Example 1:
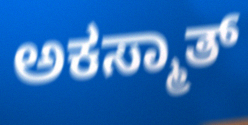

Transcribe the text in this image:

ಅಕಸ್ಮಾತ್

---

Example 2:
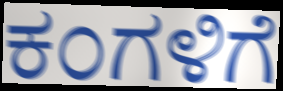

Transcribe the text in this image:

ಕಂಗಳಿಗೆ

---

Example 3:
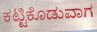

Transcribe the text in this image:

ಕಟ್ಟಿಕೊಡುವಾಗ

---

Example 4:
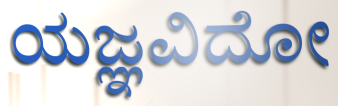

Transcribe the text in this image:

ಯಜ್ಞವಿದೋ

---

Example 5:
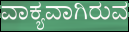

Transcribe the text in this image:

ವಾಕ್ಯವಾಗಿರುವ